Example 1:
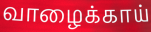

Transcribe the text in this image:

வாழைக்காய்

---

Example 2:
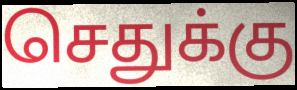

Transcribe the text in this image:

செதுக்கு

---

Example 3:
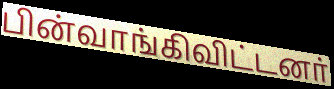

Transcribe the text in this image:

பின்வாங்கிவிட்டனர்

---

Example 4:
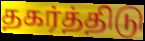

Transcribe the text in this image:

தகர்த்திடு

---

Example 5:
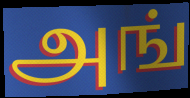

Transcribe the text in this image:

அங்